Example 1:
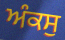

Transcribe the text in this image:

ਅੰਕਸੁ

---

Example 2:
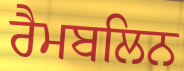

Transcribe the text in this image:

ਰੈਮਬਲਿਨ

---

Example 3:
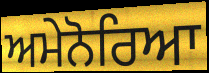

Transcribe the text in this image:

ਅਮੇਨੋਰਿਆ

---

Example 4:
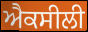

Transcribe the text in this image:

ਐਕਸੀਲੀ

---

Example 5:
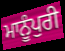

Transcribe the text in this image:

ਮਾਨੂੰਪੁਰੀ